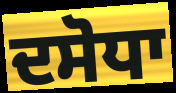
ਦਸੋਧਾ